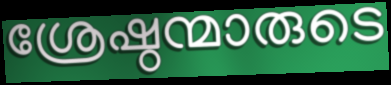
ശ്രേഷ്ഠന്മാരുടെ